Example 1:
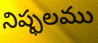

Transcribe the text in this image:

నిష్ఫలము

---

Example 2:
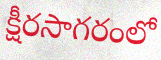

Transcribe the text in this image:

క్షీరసాగరంలో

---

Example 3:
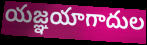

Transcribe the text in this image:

యజ్ఞయాగాదుల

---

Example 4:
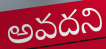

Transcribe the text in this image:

అవదని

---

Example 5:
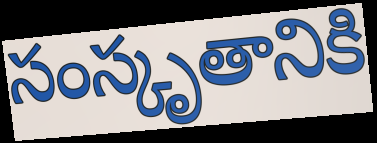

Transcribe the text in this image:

సంస్కృతానికి